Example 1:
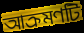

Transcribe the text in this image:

আক্রমণটি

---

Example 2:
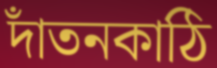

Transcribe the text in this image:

দাঁতনকাঠি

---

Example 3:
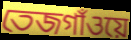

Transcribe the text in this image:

তেজগাঁওয়ে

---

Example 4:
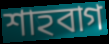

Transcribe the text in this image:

শাহবাগ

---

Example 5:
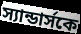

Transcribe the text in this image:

স্যান্ডার্সকে